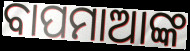
ବାପମାଆଙ୍କ